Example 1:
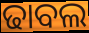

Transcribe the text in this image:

ଢାବଲ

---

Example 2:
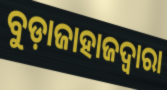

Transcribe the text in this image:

ବୁଡ଼ାଜାହାଜଦ୍ୱାରା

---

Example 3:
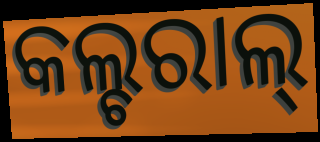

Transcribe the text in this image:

କଲ୍ଚରାଲ୍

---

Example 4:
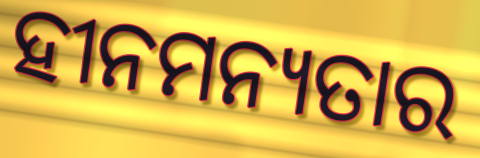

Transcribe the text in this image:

ହୀନମନ୍ୟତାର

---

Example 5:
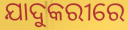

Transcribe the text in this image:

ଯାଦୁକରୀରେ